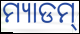
ମ୍ୟାଡମ୍